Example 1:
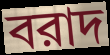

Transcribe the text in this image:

বরাদ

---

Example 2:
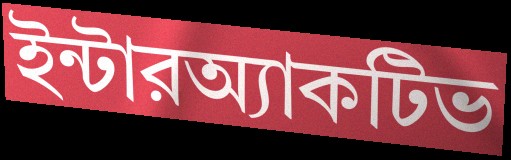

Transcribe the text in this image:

ইন্টারঅ্যাকটিভ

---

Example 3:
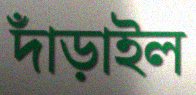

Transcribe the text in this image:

দাঁড়াইল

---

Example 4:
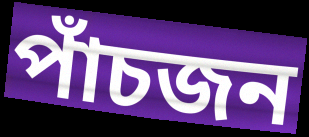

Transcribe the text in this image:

পাঁচজন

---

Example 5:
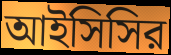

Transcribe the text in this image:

আইসিসির